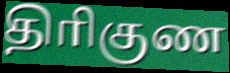
திரிகுண